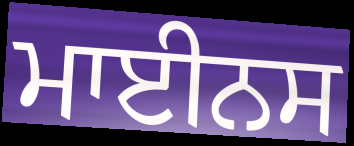
ਮਾਈਨਸ